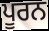
ਪੂਰਨ